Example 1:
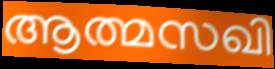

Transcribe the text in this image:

ആത്മസഖി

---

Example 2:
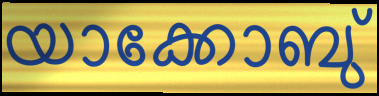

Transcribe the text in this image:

യാക്കോബു്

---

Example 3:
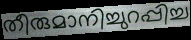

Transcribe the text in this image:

തീരുമാനിച്ചുറപ്പിച്ച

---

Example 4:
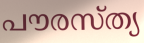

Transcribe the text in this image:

പൗരസ്ത്യ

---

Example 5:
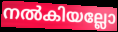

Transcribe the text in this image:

നൽകിയല്ലോ